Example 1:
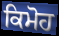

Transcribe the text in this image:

ਕਿਮੋਹ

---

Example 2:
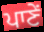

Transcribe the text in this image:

ਪਾਣੇਂ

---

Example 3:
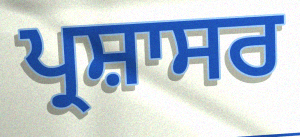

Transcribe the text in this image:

ਪ੍ਰਸ਼ਾਸਰ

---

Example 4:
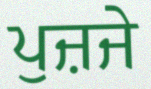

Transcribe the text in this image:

ਪੁਜ਼ਜੇ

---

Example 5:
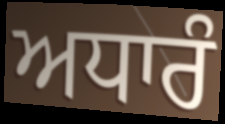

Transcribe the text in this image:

ਅਧਾਰੰ